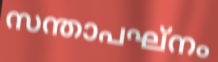
സന്താപഘ്നം